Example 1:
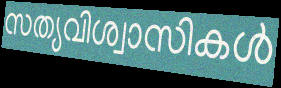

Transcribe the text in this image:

സത്യവിശ്വാസികൾ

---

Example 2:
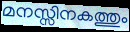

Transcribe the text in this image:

മനസ്സിനകത്തും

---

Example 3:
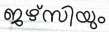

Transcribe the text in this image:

ജഴ്സിയും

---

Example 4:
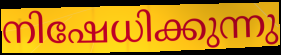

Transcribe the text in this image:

നിഷേധിക്കുന്നു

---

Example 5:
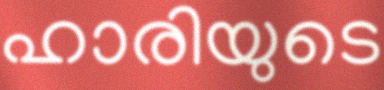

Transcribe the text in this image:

ഹാരിയുടെ